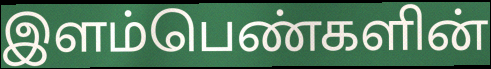
இளம்பெண்களின்